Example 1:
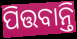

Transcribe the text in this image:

ପିତ୍ତବାନ୍ତି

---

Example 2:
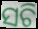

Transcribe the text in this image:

ସଚି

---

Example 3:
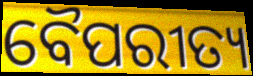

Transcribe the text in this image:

ବୈପରୀତ୍ୟ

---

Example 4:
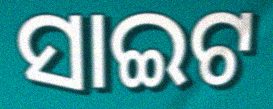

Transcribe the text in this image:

ସାଇଟ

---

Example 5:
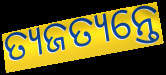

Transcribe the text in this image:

ତ୍ୟଜତ୍ୟନ୍ତେ